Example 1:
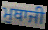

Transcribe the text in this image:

ਮੁਥਾਜੀ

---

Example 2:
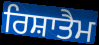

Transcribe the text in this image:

ਰਿਸ਼ਾਤੈਮ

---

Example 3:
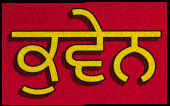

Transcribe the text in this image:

ਕੁਵੇਨ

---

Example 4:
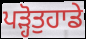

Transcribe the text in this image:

ਪੜ੍ਹੋਤੁਹਾਡੇ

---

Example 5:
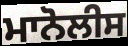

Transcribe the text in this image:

ਮਾਨੋਲੀਸ